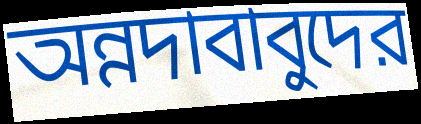
অন্নদাবাবুদের